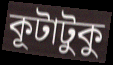
কূটাটুকু